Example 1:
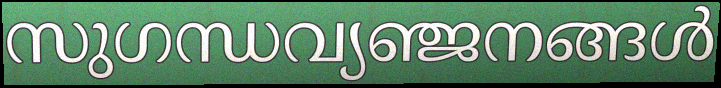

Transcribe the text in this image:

സുഗന്ധവ്യഞ്ജനങ്ങൾ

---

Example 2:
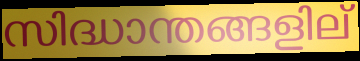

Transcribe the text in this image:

സിദ്ധാന്തങ്ങളില്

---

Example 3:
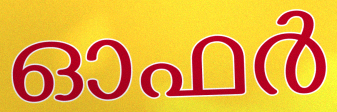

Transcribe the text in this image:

ഓഫർ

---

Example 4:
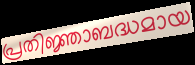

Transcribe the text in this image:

പ്രതിജ്ഞാബദ്ധമായ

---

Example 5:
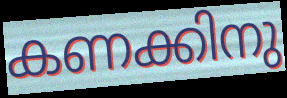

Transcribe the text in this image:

കണക്കിനു